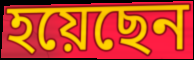
হয়েছেন